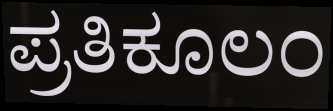
ಪ್ರತಿಕೂಲಂ